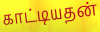
காட்டியதன்